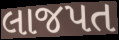
લાજપત